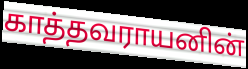
காத்தவராயனின்